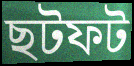
ছটফট